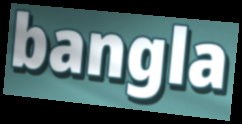
bangla